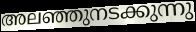
അലഞ്ഞുനടക്കുന്നു